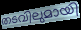
തടവിലുമായി